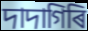
দাদাগিৰি